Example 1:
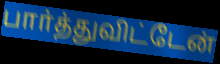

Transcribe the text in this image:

பார்த்துவிட்டேன்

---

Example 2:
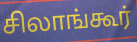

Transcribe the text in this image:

சிலாங்கூர்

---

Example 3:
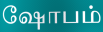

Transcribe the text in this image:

ஷோபம்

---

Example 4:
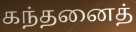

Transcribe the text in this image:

கந்தனைத்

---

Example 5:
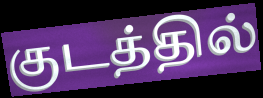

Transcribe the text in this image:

குடத்தில்